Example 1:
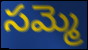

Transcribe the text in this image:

సమ్మె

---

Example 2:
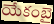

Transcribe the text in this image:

యేకంబై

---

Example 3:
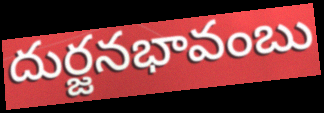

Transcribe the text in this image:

దుర్జనభావంబు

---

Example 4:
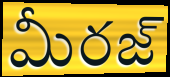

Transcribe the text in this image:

మీరజ్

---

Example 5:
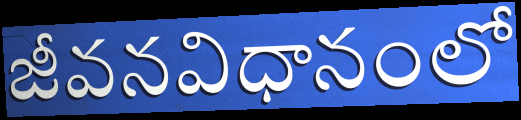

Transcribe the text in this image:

జీవనవిధానంలో